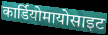
कार्डियोमायोसाइट